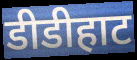
डीडीहाट